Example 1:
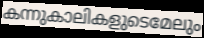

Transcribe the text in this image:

കന്നുകാലികളുടെമേലും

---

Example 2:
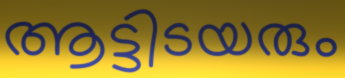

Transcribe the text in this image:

ആട്ടിടയരും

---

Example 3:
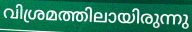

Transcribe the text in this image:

വിശ്രമത്തിലായിരുന്നു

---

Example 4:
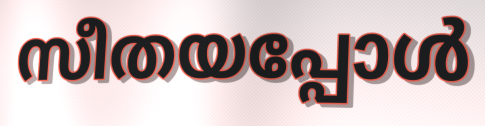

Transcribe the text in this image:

സീതയപ്പോൾ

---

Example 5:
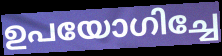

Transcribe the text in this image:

ഉപയോഗിച്ചേ